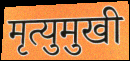
मृत्युमुखी